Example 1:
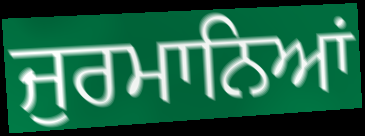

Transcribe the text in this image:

ਜੁਰਮਾਨਿਆਂ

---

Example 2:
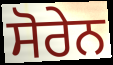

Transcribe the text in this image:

ਸੋਰੇਨ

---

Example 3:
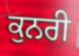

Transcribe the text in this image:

ਕੁਨਰੀ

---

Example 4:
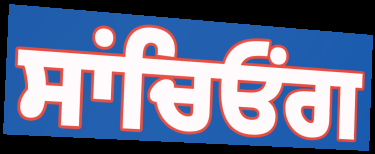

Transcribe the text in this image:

ਸਾਂਚਿਓਂਗ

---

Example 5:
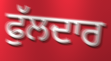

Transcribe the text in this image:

ਫੁੱਲਦਾਰ